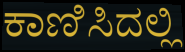
ಕಾಣಿಸಿದಲ್ಲಿ